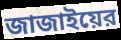
জাজাইয়ের